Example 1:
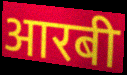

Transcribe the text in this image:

आरबी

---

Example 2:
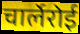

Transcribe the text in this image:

चार्लेरोई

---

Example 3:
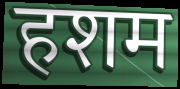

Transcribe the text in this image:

हशम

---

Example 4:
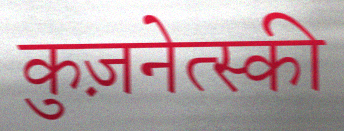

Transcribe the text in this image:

कुज़नेत्स्की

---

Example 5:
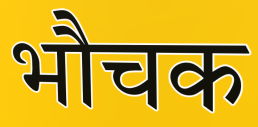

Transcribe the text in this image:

भौचक